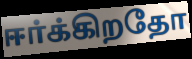
ஈர்க்கிறதோ